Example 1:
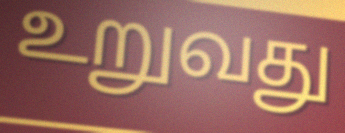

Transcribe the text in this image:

உறுவது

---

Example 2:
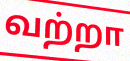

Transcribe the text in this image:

வற்றா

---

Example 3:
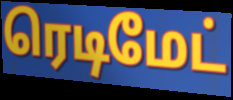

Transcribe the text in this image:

ரெடிமேட்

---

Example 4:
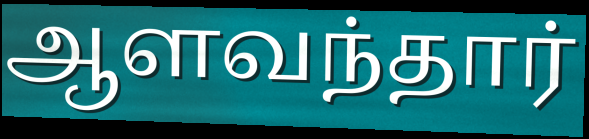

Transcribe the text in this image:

ஆளவந்தார்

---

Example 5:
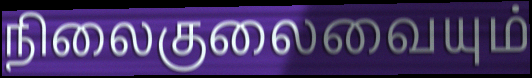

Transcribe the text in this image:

நிலைகுலைவையும்